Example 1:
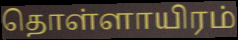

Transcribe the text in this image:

தொள்ளாயிரம்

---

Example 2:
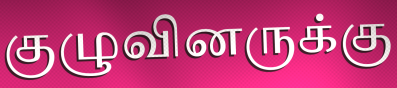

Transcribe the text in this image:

குழுவினருக்கு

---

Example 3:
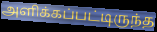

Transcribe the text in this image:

அளிக்கப்பட்டிருந்த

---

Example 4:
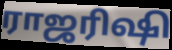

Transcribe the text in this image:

ராஜரிஷி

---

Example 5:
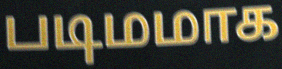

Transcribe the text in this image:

படிமமாக